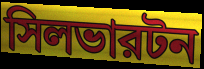
সিলভারটন